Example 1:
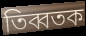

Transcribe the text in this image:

তিব্বতক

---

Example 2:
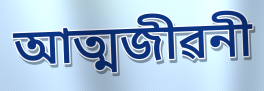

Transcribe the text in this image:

আত্মজীৱনী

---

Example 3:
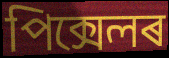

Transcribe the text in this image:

পিক্সেলৰ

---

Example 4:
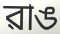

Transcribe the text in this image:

ৱাঙ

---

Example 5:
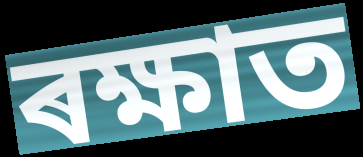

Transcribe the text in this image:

ৰক্ষাত